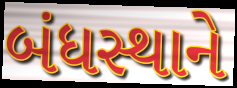
બંધસ્થાને